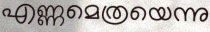
എണ്ണമെത്രയെന്നു